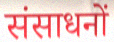
संसाधनों